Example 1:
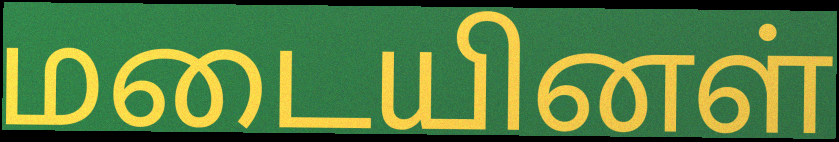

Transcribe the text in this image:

மடையினள்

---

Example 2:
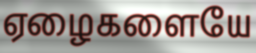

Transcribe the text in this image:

ஏழைகளையே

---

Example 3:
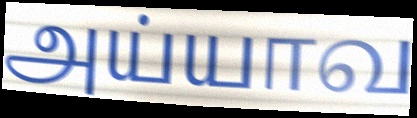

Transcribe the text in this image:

அய்யாவ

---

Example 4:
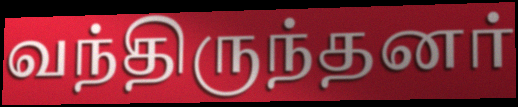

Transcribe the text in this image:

வந்திருந்தனர்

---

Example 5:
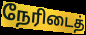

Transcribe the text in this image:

நேரிடைத்